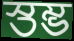
স্তম্ভ